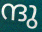
ന്ദു